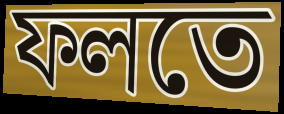
ফলতে